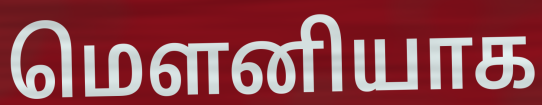
மெளனியாக